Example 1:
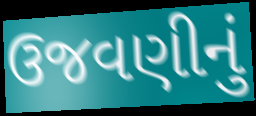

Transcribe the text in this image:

ઉજવણીનું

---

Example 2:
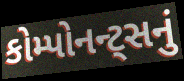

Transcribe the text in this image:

કોમ્પોનન્ટ્સનું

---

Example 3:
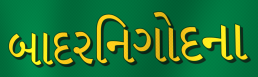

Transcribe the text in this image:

બાદરનિગોદના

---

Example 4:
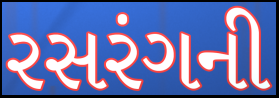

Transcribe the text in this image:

રસરંગની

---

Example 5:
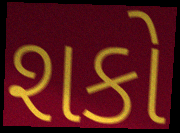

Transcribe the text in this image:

શકો